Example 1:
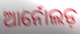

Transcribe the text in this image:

ଆର୍ନୋଲଡ଼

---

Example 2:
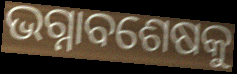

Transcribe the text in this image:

ଭଗ୍ନାବଶେଷକୁ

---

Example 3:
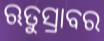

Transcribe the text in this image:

ଋତୁସ୍ରାବର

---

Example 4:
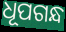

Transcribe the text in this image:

ଧୂପଗନ୍ଧ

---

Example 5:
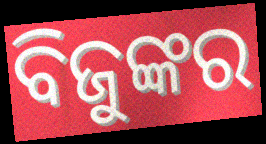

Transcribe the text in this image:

ବିଜୁଙ୍କର